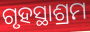
ଗୃହସ୍ଥାଶ୍ରମ